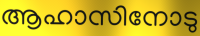
ആഹാസിനോടു